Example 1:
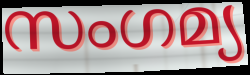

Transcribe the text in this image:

സംഗമ്യ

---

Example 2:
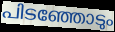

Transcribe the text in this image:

പിടഞ്ഞോടും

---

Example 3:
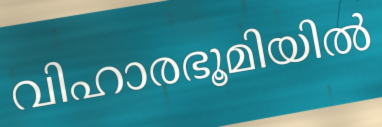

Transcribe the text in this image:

വിഹാരഭൂമിയിൽ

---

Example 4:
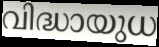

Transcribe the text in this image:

വിദ്ധായുധ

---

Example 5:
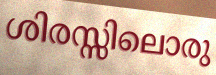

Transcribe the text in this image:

ശിരസ്സിലൊരു